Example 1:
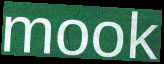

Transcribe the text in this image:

mook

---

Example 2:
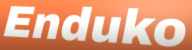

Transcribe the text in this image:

Enduko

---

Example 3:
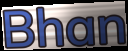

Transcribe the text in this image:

Bhan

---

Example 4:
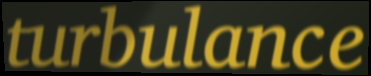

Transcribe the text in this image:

turbulance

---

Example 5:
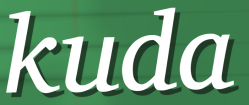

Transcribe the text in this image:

kuda